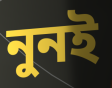
নুনই